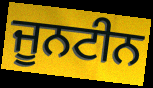
ਜੂਨਟੀਨ